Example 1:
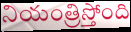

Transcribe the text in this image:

నియంత్రిస్తోంది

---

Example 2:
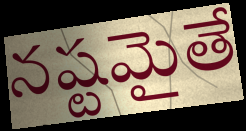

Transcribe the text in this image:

నష్టమైతే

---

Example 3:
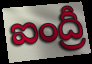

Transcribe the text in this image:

ఐంద్రీ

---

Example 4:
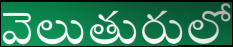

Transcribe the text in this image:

వెలుతురులో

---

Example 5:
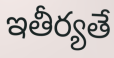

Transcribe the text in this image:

ఇతీర్యతే